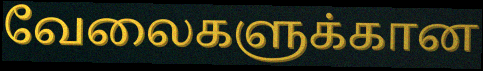
வேலைகளுக்கான